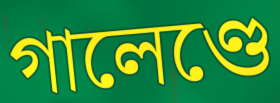
গালেণ্ডে